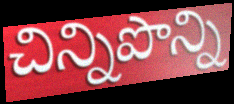
చిన్నిపొన్ని